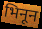
भिनून